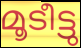
മൂടീട്ടു